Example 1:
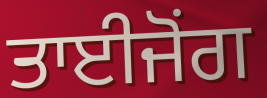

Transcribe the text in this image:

ਤਾਈਜੋਂਗ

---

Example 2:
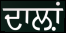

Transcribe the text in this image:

ਦਾਲ਼ਾਂ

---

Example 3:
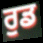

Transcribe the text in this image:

ਰੁਡ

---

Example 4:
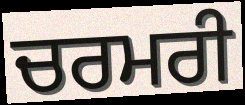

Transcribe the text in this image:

ਚਰਮਰੀ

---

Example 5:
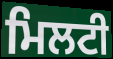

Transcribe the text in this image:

ਮਿਲਟੀ